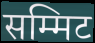
सम्मिट